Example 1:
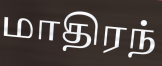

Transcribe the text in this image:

மாதிரந்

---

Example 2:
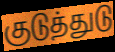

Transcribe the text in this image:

குடுத்துடு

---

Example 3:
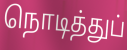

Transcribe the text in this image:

நொடித்துப்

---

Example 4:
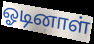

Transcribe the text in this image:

ஓடினாள்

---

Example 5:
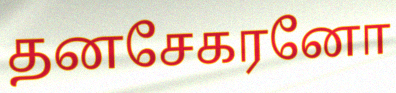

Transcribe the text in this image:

தனசேகரனோ